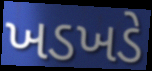
ખડખડે